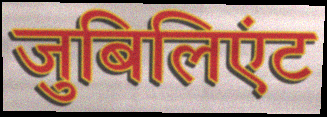
जुबिलिएंट